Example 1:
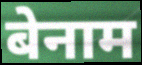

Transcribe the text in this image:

बेनाम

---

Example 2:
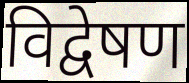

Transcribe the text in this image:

विद्वेषण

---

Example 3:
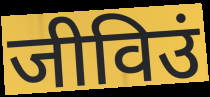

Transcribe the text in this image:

जीविउं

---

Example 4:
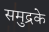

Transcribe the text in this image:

समुद्रके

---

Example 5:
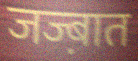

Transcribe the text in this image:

जज्ब़ात